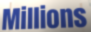
Millions